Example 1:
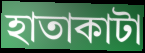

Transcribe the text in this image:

হাতাকাটা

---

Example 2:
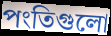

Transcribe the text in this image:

পংতিগুলো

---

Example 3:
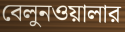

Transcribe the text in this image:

বেলুনওয়ালার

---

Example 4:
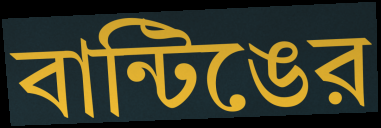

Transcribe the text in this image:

বান্টিঙের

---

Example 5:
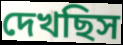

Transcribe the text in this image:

দেখছিস